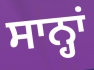
ਸਾਨ੍ਹਾਂ